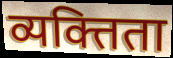
व्यक्तिता